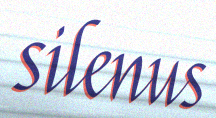
silenus